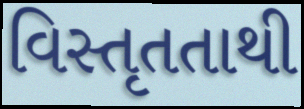
વિસ્તૃતતાથી